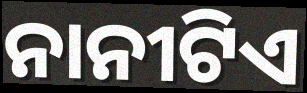
ନାନୀଟିଏ